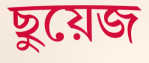
ছুয়েজ